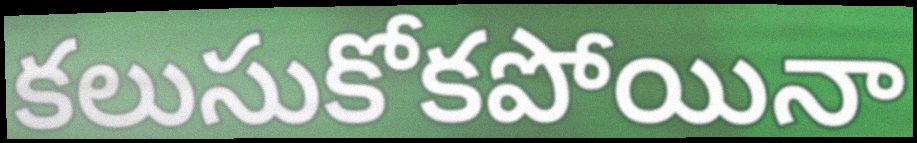
కలుసుకోకపోయినా